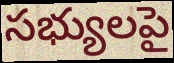
సభ్యులపై